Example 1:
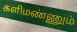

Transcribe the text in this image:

களிமண்ணும்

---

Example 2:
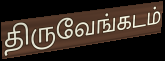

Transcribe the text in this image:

திருவேங்கடம்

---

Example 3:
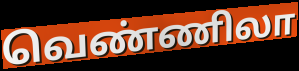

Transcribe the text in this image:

வெண்ணிலா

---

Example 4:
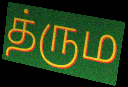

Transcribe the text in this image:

த்ரும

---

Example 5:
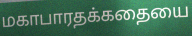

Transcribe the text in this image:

மகாபாரதக்கதையை